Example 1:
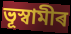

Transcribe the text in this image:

ভূস্বামীৰ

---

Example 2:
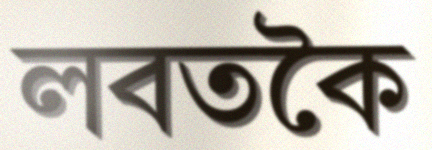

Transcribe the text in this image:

লবতকৈ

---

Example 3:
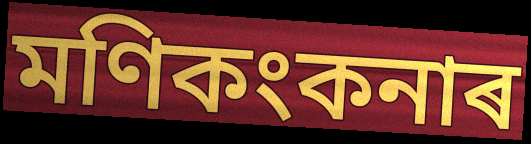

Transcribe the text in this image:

মণিকংকনাৰ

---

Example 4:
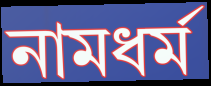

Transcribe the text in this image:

নামধৰ্ম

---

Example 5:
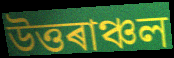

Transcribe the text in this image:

উত্তৰাঞ্চল